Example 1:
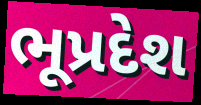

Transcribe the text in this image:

ભૂપ્રદેશ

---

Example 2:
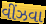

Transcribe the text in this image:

વીંઝવા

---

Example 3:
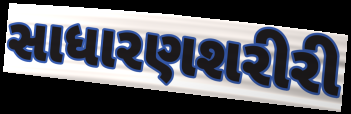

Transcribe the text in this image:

સાધારણશરીરી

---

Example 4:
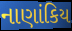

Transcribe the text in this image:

નાણાંકિય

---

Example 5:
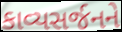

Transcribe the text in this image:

કાવ્યસર્જનને